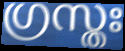
ഗ്രസ്തഃ